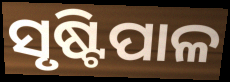
ସୃଷ୍ଟିପାଳ